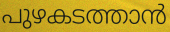
പുഴകടത്താൻ